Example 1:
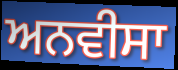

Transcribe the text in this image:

ਅਨਵੀਸਾ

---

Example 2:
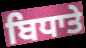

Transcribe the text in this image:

ਬਿਧਾਤੇ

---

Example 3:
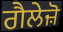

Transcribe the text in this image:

ਗੈਲੇਜ਼ੋ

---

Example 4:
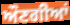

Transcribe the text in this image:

ਔਣਗੀਆਂ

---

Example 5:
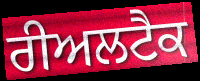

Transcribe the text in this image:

ਰੀਅਲਟੈਕ